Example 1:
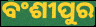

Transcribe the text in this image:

ବଂଶୀପୁର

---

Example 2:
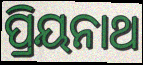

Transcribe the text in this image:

ପ୍ରିୟନାଥ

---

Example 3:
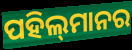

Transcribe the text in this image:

ପହିଲ୍‌ମାନର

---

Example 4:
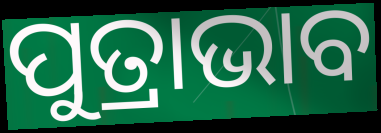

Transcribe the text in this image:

ପୁତ୍ରାଭାବ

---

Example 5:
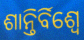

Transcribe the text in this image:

ଶାନ୍ତିର୍ବିଶ୍ୱେ